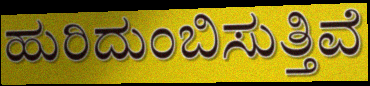
ಹುರಿದುಂಬಿಸುತ್ತಿವೆ